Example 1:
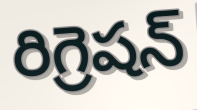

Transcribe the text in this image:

రిగ్రెషన్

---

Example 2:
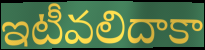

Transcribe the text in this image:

ఇటీవలిదాకా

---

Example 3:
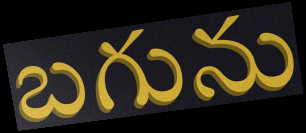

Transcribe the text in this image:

బగును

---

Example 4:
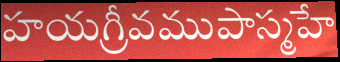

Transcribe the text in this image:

హయగ్రీవముపాస్మహే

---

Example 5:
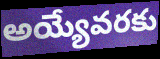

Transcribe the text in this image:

అయ్యేవరకు